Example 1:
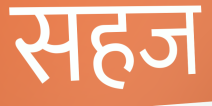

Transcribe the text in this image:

सहज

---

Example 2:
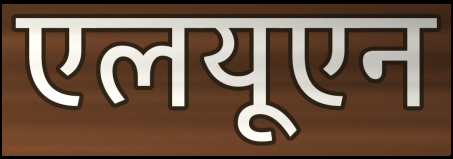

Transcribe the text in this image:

एलयूएन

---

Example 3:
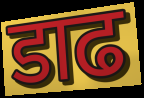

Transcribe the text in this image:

डाढ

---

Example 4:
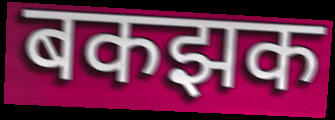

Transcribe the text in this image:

बकझक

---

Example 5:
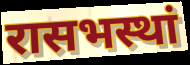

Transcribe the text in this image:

रासभस्थां